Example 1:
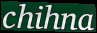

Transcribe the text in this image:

chihna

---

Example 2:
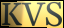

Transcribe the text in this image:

KVS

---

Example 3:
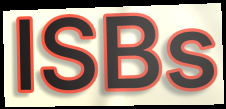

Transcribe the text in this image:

ISBs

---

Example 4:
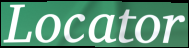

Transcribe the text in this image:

Locator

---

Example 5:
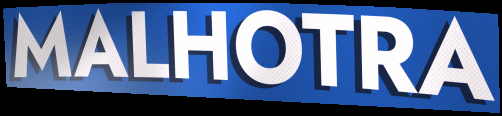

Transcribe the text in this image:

MALHOTRA